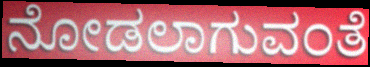
ನೋಡಲಾಗುವಂತೆ